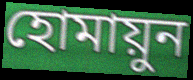
হোমায়ুন